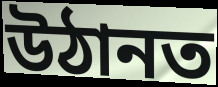
উঠানত